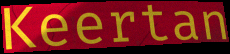
Keertan